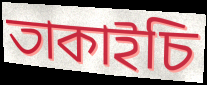
তাকাইচি